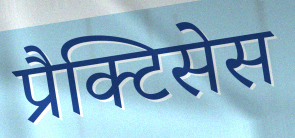
प्रैक्टिसेस